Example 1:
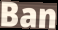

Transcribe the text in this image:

Ban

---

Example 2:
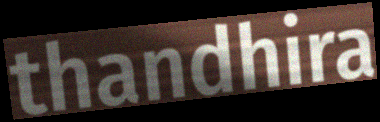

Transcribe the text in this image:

thandhira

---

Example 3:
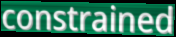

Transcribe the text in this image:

constrained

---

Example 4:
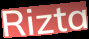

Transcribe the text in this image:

Rizta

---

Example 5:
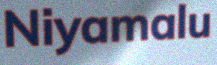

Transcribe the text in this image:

Niyamalu